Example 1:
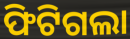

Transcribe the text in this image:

ଫିଟିଗଲା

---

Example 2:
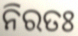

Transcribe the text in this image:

ନିରତଃ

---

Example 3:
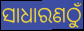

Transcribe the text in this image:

ସାଧାରଣଠୁଁ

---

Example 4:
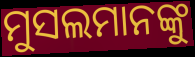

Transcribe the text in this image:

ମୁସଲମାନଙ୍କୁ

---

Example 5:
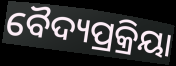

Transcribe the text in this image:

ବୈଦ୍ୟପ୍ରକ୍ରିୟା